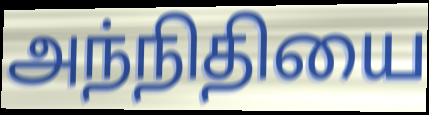
அந்நிதியை